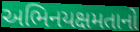
અભિનયક્ષમતાનો